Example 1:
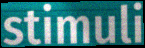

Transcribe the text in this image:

stimuli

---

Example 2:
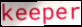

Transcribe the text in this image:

keeper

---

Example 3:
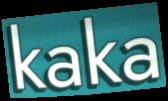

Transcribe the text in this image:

kaka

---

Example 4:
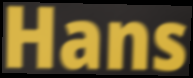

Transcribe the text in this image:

Hans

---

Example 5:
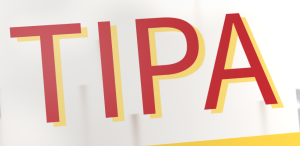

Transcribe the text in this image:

TIPA